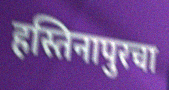
हस्तिनापुरचा